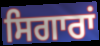
ਸਿਗਾਰਾਂ